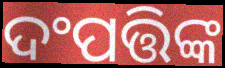
ଦଂପତ୍ତିଙ୍କ